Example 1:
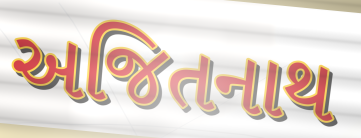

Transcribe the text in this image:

અજિતનાથ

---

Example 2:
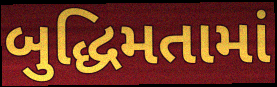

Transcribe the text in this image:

બુદ્ધિમતામાં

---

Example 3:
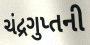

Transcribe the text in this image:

ચંદ્રગુપ્તની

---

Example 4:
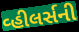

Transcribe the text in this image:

વ્હીલર્સની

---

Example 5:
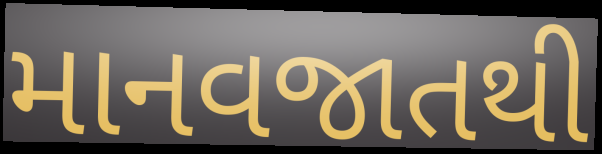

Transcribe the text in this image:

માનવજાતથી